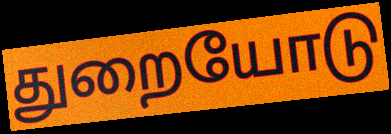
துறையோடு